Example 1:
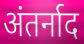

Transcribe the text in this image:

अंतर्नाद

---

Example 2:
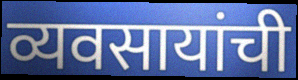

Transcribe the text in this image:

व्यवसायांची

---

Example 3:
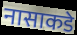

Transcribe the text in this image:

नासाकडे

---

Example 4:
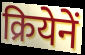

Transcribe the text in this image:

क्रियेनें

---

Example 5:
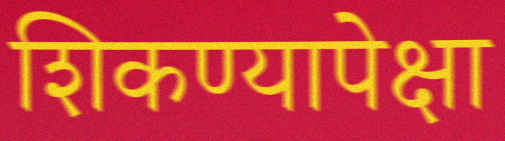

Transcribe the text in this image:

शिकण्यापेक्षा